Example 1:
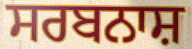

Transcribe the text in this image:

ਸਰਬਨਾਸ਼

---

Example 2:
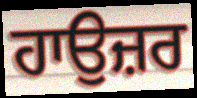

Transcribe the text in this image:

ਹਾਉਜ਼ਰ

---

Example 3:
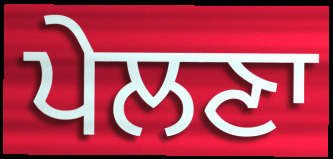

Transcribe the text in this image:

ਪੇਲਣਾ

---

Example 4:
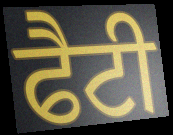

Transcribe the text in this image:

ਫੈਟੀ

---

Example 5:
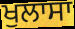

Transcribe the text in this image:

ਖੁਲਾਸਾ